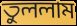
তুললাম